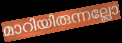
മാറിയിരുന്നല്ലോ